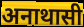
अनाथासी